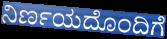
ನಿರ್ಣಯದೊಂದಿಗೆ